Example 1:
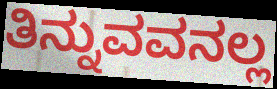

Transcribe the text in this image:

ತಿನ್ನುವವನಲ್ಲ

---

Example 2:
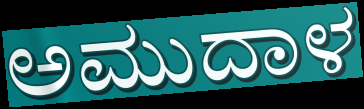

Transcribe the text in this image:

ಅಮುದಾಳ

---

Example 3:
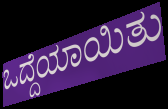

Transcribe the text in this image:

ಒದ್ದೆಯಾಯಿತು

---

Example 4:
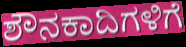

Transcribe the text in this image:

ಶೌನಕಾದಿಗಳಿಗೆ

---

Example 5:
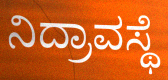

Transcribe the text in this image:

ನಿದ್ರಾವಸ್ಥೆ